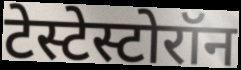
टेस्टेस्टोरॉन